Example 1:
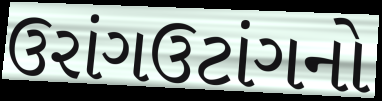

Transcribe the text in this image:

ઉરાંગઉટાંગનો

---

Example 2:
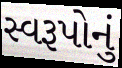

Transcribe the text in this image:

સ્વરૂપોનું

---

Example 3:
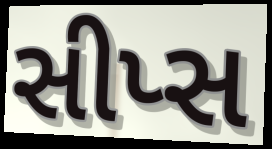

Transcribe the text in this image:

સીપ્સ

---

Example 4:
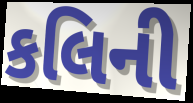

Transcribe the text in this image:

કલિની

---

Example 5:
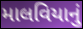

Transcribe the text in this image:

માલવિયાનું